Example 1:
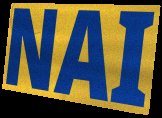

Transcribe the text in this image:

NAI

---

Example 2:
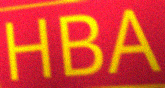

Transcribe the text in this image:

HBA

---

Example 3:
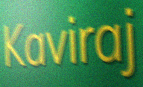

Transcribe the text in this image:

Kaviraj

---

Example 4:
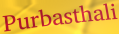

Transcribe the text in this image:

Purbasthali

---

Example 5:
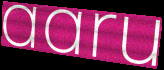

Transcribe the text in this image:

aaru